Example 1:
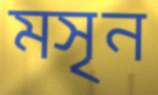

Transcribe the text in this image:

মসৃন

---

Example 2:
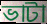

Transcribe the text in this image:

ভাটা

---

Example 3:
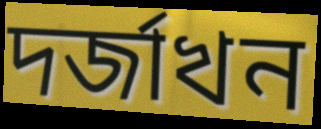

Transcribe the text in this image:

দৰ্জাখন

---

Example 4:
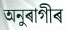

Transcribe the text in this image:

অনুৰাগীৰ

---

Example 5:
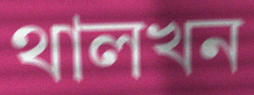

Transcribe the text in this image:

থালখন